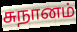
சுநானம்